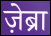
ज़ेब्रा